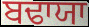
ਬਢਾਯਾ